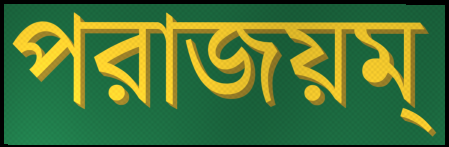
পরাজয়ম্